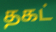
தகட்